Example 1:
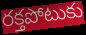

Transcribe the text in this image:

రక్తపోటుకు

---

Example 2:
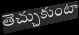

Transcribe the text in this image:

తెచ్చుకుంటా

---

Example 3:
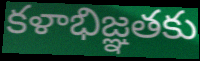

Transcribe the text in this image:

కళాభిజ్ఞతకు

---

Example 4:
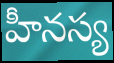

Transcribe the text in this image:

హీనస్య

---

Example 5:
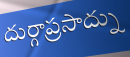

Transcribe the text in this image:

దుర్గాప్రసాద్ను